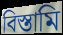
বিস্তামি